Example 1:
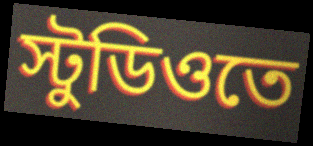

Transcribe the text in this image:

স্টুডিওতে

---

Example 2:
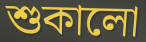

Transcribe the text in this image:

শুকালো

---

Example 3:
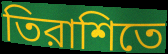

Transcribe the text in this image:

তিরাশিতে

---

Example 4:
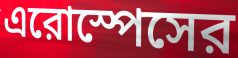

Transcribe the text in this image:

এরোস্পেসের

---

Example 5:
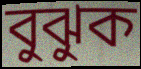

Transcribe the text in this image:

বুঝুক